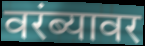
वरंब्यावर